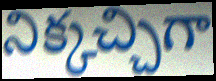
నిక్కచ్చిగా